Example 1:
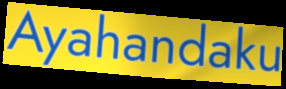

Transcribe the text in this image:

Ayahandaku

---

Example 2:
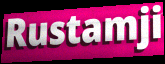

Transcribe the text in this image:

Rustamji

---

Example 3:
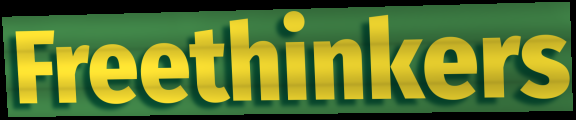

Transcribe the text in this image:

Freethinkers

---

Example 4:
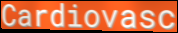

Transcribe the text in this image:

Cardiovasc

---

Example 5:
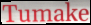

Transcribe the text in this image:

Tumake